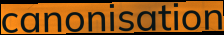
canonisation